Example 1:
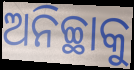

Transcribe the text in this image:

ଅନିଚ୍ଛାକୁ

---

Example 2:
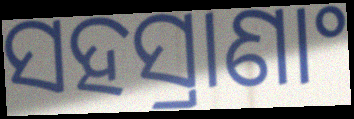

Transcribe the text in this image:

ସହସ୍ରାଣାଂ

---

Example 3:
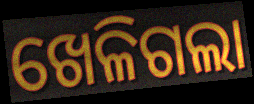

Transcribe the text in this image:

ଖେଳିଗଲା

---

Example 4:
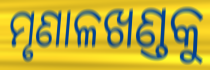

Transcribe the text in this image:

ମୃଣାଳଖଣ୍ଡକୁ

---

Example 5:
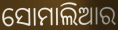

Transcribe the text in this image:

ସୋମାଲିଆର